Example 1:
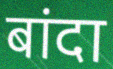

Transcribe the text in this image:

बांदा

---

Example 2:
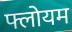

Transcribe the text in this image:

फ्लोयम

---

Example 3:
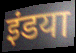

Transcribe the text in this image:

इंडया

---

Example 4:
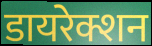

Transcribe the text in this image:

डायरेक्शन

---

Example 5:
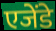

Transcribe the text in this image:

एजेंडे